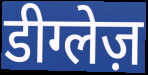
डीग्लेज़